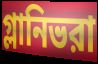
গ্লানিভরা